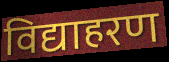
विद्याहरण